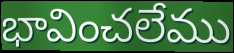
భావించలేము